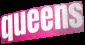
queens